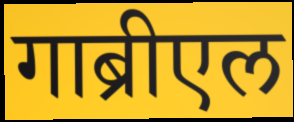
गाब्रीएल